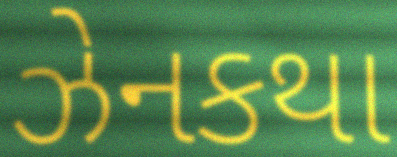
ઝેનકથા